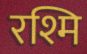
रश्मि